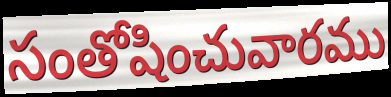
సంతోషించువారము